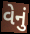
વેનું